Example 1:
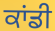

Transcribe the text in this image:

ਕਾਂਡੀ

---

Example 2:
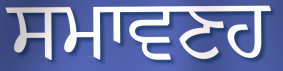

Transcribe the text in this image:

ਸਮਾਵਣਹ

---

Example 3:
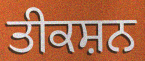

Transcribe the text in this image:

ਤੀਕਸ਼ਨ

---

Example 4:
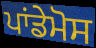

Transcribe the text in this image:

ਪਾਂਡੇਮੋਸ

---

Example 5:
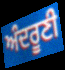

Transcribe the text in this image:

ਅੰਦਰੂਣੀ